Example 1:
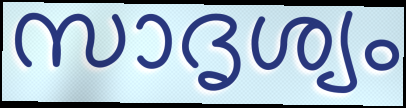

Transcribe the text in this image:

സാദൃശ്യം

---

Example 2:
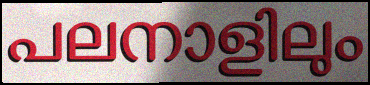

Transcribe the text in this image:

പലനാളിലും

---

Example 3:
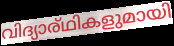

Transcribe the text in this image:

വിദ്യാര്ഥികളുമായി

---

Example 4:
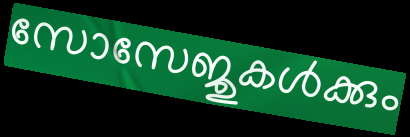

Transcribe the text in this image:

സോസേജുകൾക്കും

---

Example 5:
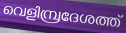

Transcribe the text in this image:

വെളിമ്പ്രദേശത്ത്